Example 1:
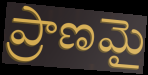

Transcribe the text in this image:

ప్రాణమై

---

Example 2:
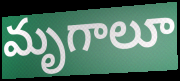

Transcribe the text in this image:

మృగాలూ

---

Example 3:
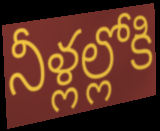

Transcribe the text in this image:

నీళ్లల్లోకి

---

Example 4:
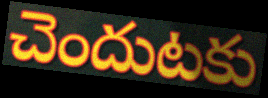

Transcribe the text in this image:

చెందుటకు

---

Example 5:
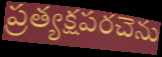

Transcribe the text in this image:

ప్రత్యక్షపరచెను